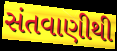
સંતવાણીથી